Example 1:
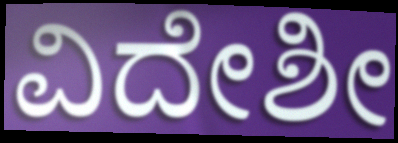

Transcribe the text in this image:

ವಿದೇಶೀ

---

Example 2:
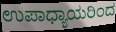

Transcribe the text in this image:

ಉಪಾಧ್ಯಾಯರಿಂದ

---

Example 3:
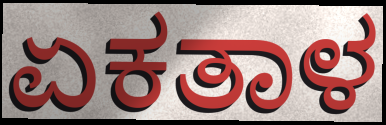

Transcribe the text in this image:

ಏಕತಾಳ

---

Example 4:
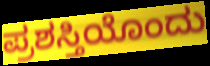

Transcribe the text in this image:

ಪ್ರಶಸ್ತಿಯೊಂದು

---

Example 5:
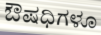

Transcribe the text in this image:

ಔಷಧಿಗಳೂ